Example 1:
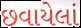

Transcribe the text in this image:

છવાયેલાં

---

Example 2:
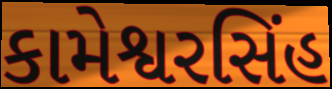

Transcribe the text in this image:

કામેશ્વરસિંહ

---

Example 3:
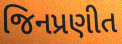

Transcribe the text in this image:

જિનપ્રણીત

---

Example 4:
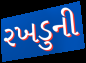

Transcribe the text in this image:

રખડુની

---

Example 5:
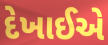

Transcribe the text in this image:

દેખાઈએ